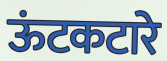
ऊंटकटारे